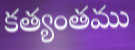
కత్యంతము